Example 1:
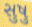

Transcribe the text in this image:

સુષુ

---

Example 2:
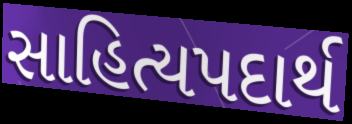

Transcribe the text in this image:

સાહિત્યપદાર્થ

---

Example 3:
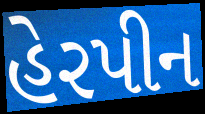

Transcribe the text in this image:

હેરપીન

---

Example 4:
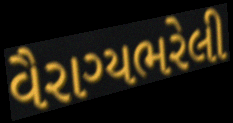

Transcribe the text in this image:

વૈરાગ્યભરેલી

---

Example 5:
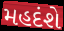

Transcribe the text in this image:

મહદંશે